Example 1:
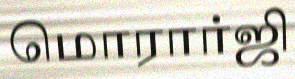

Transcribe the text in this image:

மொரார்ஜி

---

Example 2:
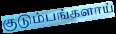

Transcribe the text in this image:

குடும்பங்களாய்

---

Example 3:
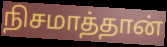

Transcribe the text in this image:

நிசமாத்தான்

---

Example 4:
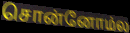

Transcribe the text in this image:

சொன்னோம்ல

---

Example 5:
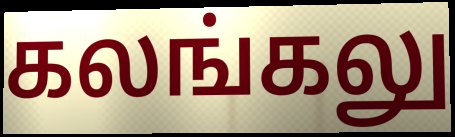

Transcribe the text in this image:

கலங்கலு